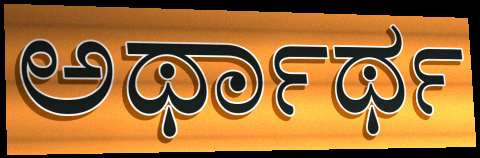
ಅರ್ಥಾರ್ಥ